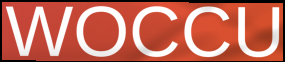
WOCCU